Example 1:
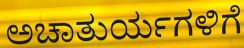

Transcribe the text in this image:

ಅಚಾತುರ್ಯಗಳಿಗೆ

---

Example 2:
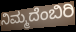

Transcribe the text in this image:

ನಿಮ್ಮದೆಂಬಿರಿ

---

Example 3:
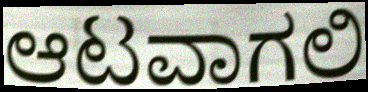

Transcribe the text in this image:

ಆಟವಾಗಲಿ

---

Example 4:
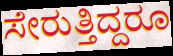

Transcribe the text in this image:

ಸೇರುತ್ತಿದ್ದರೂ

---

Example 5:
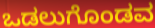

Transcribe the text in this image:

ಒಡಲುಗೊಂಡವ